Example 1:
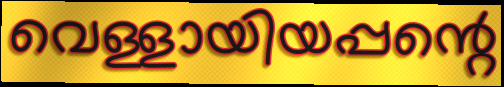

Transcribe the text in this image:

വെള്ളായിയപ്പന്റെ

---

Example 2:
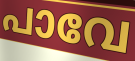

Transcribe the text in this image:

പാവേ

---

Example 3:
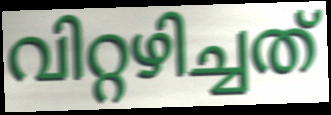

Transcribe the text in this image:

വിറ്റഴിച്ചത്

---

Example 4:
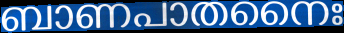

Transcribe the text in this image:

ബാണപാതനൈഃ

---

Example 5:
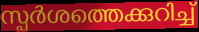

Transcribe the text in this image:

സ്പർശത്തെക്കുറിച്ച്